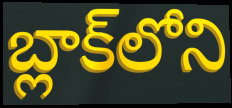
బ్లాక్‌లోని